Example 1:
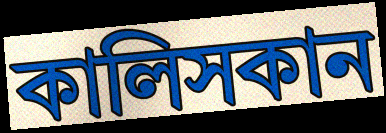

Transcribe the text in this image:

কালিসকান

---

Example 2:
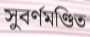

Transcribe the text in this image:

সুবর্ণমণ্ডিত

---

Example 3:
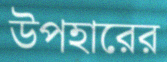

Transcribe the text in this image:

উপহারের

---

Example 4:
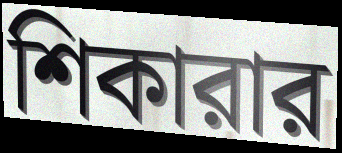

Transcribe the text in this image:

শিকারার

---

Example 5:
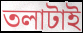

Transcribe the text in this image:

তলাটাই